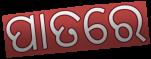
ପାତରେ